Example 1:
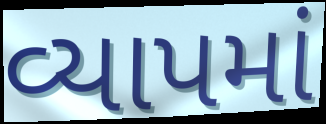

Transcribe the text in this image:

વ્યાપમાં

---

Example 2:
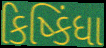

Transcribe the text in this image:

કિષ્કિંધા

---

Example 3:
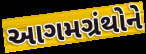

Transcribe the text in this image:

આગમગ્રંથોને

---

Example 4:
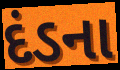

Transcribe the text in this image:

દંડના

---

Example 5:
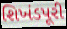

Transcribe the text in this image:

શિખંડપૂરી